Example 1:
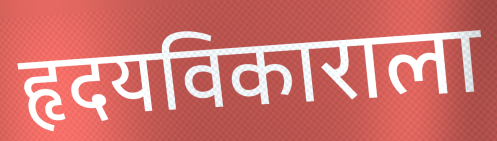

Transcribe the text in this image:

हृदयविकाराला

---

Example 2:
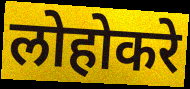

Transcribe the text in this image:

लोहोकरे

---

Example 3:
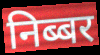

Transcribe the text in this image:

निब्बर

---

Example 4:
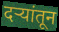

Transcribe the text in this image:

दऱ्यांतून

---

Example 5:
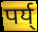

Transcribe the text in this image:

पर्य्